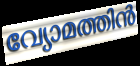
വ്യോമത്തിൻ